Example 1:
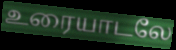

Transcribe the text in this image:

உரையாடலே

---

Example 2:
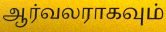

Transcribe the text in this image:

ஆர்வலராகவும்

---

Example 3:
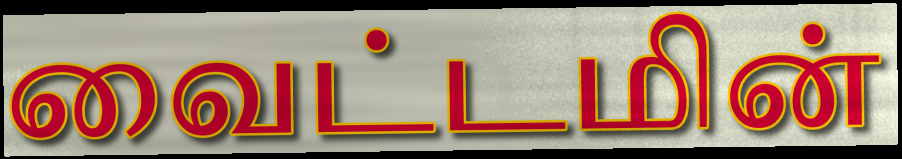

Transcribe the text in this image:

வைட்டமின்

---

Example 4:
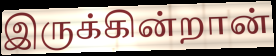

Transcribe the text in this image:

இருக்கின்றான்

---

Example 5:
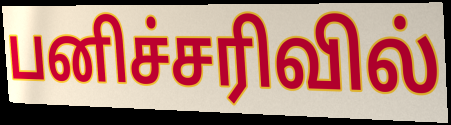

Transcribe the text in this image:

பனிச்சரிவில்